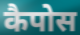
कैपोस